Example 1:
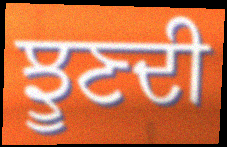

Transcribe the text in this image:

ਝੂਣਦੀ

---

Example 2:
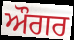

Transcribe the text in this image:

ਔਗਰ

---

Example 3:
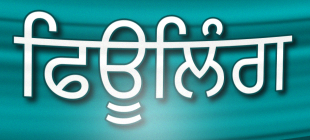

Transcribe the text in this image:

ਫਿਊਲਿੰਗ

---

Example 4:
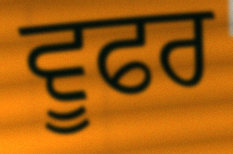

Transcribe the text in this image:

ਵੂਫਰ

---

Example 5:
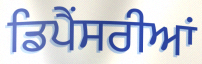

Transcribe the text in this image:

ਡਿਪੈਂਸਰੀਆਂ